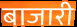
बाजारी